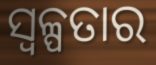
ସ୍ଵଳ୍ପତାର